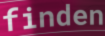
finden